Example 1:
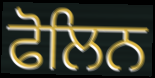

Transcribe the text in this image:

ਫੋਲਿਨ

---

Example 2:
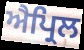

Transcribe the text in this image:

ਐਪ੍ਰਿਲ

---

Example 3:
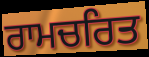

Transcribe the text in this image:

ਰਾਮਚਰਿਤ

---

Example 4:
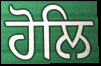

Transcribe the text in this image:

ਹੋਲਿ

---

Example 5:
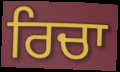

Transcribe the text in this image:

ਰਿਚਾ